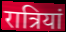
रात्रियां